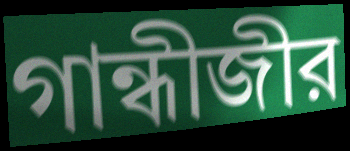
গান্ধীজীর